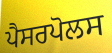
ਪੈਸਰਪੋਲਸ